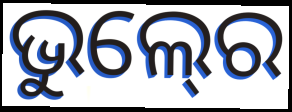
ଭୁଲ୍‍ରେ